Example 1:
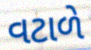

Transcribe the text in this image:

વટાળે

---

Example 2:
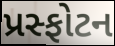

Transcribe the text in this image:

પ્રસ્ફોટન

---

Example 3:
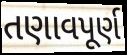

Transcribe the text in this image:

તણાવપૂર્ણ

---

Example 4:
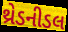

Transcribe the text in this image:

થ્રેડનીડલ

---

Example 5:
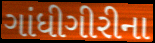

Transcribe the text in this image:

ગાંધીગીરીના